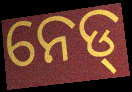
ନେଡ୍